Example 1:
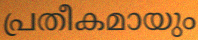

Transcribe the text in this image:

പ്രതീകമായും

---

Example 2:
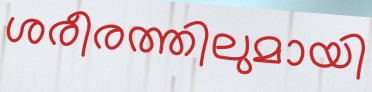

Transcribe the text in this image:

ശരീരത്തിലുമായി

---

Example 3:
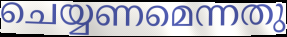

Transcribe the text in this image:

ചെയ്യണമെന്നതു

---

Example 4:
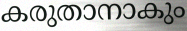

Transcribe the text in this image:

കരുതാനാകും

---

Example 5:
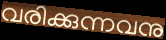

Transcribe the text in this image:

വരിക്കുന്നവനു